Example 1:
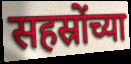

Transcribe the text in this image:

सहस्रोंच्या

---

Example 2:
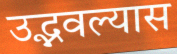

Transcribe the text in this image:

उद्भवल्यास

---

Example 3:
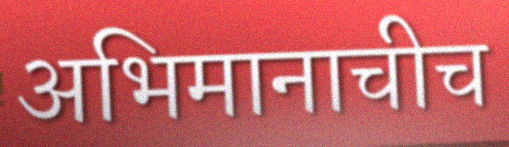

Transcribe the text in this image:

अभिमानाचीच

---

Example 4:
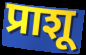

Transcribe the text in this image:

प्राशू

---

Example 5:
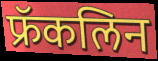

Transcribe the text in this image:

फ्रॅकलिन